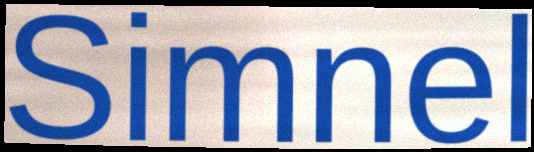
Simnel